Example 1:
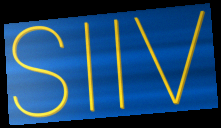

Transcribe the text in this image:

SIIV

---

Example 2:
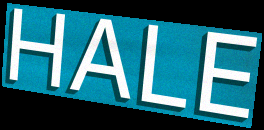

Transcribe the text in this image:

HALE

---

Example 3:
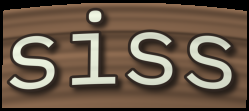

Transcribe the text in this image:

siss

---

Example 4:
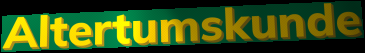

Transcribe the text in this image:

Altertumskunde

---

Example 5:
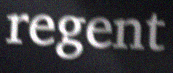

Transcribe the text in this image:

regent